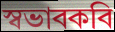
স্বভাবকবি